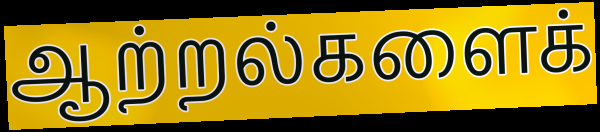
ஆற்றல்களைக்